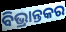
ବିଭ୍ରାନ୍ତକର